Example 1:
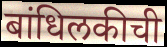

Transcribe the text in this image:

बांधिलकीची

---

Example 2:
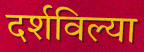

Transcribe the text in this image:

दर्शविल्या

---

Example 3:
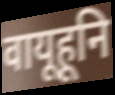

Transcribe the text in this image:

वायूहूनि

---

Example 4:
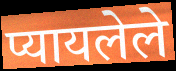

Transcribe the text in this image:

प्यायलेले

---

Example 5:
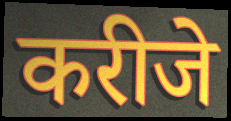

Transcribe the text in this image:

करीजे